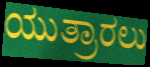
ಯುತ್ರಾರಲು